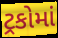
ટ્રકોમાં